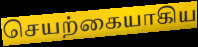
செயற்கையாகிய